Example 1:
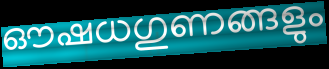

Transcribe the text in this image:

ഔഷധഗുണങ്ങളും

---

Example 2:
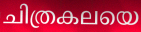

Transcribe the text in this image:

ചിത്രകലയെ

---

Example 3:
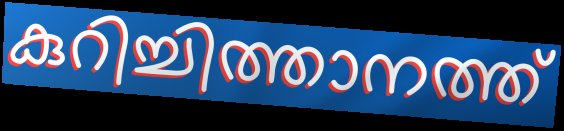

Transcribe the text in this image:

കുറിച്ചിത്താനത്ത്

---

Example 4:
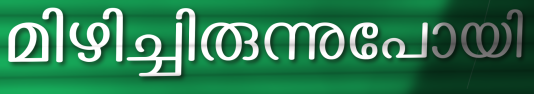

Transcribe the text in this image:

മിഴിച്ചിരുന്നുപോയി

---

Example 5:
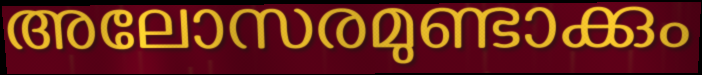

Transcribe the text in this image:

അലോസരമുണ്ടാക്കും